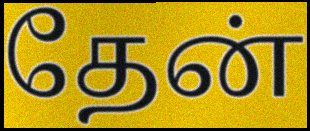
தேன்